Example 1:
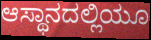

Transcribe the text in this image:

ಆಸ್ಥಾನದಲ್ಲಿಯೂ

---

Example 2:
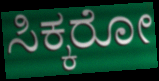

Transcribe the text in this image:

ಸಿಕ್ಕರೋ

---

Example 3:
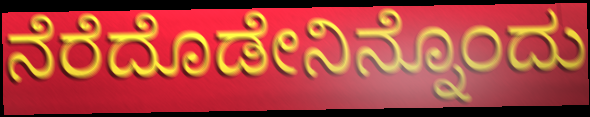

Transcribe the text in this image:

ನೆರೆದೊಡೇನಿನ್ನೊಂದು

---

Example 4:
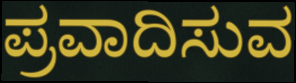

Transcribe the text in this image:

ಪ್ರವಾದಿಸುವ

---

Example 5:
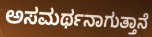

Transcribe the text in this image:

ಅಸಮರ್ಥನಾಗುತ್ತಾನೆ